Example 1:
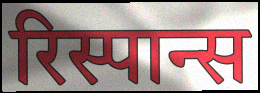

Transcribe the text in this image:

रिस्पान्स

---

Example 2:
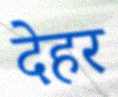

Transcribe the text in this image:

देहर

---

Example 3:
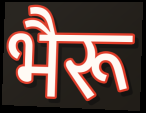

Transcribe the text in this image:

भैरू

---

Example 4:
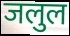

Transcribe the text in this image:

जलुल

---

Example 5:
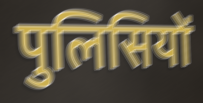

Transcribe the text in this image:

पुलिसियों